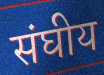
संघीय